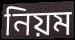
নিয়ম